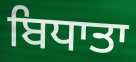
ਬਿਧਾਤਾ